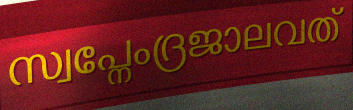
സ്വപ്നേംദ്രജാലവത്